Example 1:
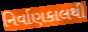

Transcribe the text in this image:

નિર્વાણકાલથી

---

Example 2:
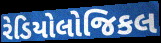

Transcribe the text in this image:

રેડિયોલોજિકલ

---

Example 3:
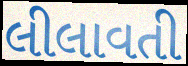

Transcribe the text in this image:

લીલાવતી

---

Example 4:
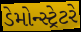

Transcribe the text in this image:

ડેમોન્સ્ટ્રેટરે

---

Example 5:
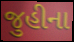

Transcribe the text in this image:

જુહીના